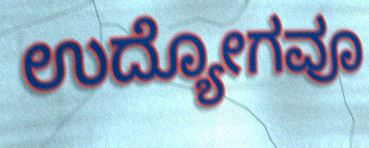
ಉದ್ಯೋಗವೂ